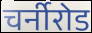
चर्नीरोड